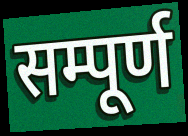
सम्पूर्ण